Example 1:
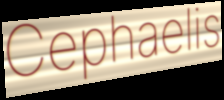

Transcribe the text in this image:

Cephaelis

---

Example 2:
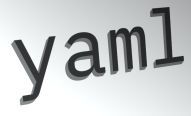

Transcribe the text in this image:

yaml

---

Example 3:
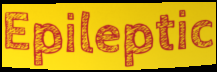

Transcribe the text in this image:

Epileptic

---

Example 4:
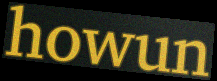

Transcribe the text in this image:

howun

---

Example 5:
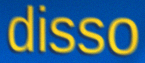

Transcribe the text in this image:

disso